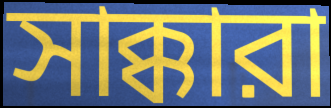
সাক্কারা